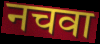
नचवा